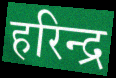
हरिन्द्र